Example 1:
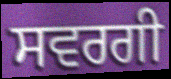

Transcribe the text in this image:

ਸਵਰਗੀ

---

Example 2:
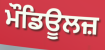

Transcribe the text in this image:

ਮੌਡਿਊਲਜ਼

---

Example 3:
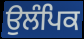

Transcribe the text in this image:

ਉਲੰਪਿਕ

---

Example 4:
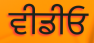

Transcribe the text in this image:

ਵੀਡੀਓ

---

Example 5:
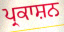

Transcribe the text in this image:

ਪ੍ਰਕਾਸ਼ਨ